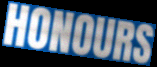
HONOURS